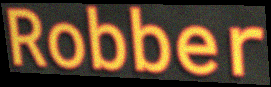
Robber